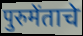
पुरुमेंताचे